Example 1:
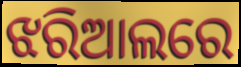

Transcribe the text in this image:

ଝରିଆଲରେ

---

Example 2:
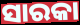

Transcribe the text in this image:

ସାରକା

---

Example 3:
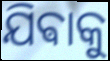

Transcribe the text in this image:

ଯିଵାକୁ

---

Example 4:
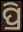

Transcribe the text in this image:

ପ୍ରି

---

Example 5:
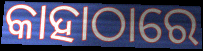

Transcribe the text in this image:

କାହାଠାରେ